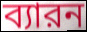
ব্যারন